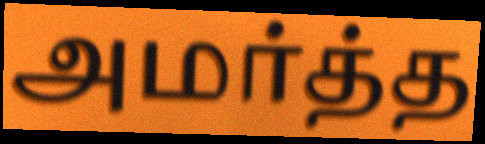
அமர்த்த